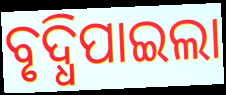
ବୃଦ୍ଧିପାଇଲା